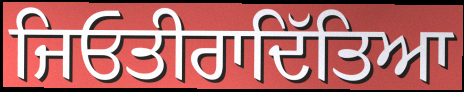
ਜਿਓਤੀਰਾਦਿੱਤਿਆ